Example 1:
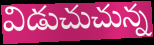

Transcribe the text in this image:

విడుచుచున్న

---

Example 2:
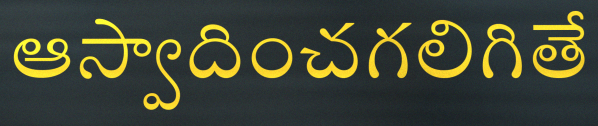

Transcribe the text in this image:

ఆస్వాదించగలిగితే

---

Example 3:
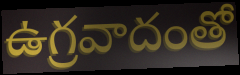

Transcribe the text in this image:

ఉగ్రవాదంతో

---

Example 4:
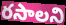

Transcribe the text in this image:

రసాలని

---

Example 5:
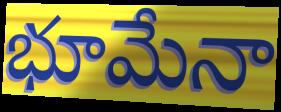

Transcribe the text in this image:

భూమేనా